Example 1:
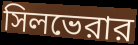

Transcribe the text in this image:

সিলভেরার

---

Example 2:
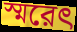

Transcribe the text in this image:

স্মরেৎ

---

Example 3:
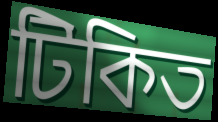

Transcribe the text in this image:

টিকিত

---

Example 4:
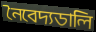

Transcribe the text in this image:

নৈবেদ্যডালি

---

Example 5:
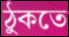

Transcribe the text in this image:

ঠুকতে